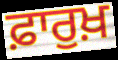
ਫ਼ਾਰੁਖ਼